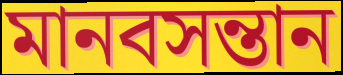
মানবসন্তান